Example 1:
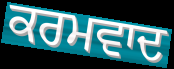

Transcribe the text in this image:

ਕਰਮਵਾਦ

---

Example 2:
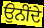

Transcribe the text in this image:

ਉਨੀਂਦੇ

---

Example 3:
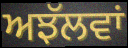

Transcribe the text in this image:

ਅਝੱਲਵਾਂ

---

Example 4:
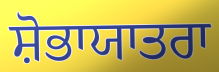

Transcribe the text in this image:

ਸ਼ੋਭਾਯਾਤਰਾ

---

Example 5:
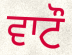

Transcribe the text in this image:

ਵਾਟੌ